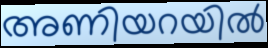
അണിയറയിൽ